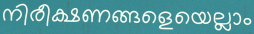
നിരീക്ഷണങ്ങളെയെല്ലാം